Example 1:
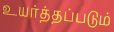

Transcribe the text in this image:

உயர்த்தப்படும்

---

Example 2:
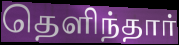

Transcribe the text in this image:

தெளிந்தார்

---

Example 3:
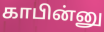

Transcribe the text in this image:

காபின்னு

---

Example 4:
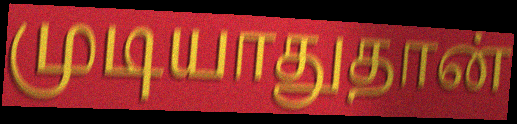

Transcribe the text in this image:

முடியாதுதான்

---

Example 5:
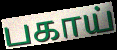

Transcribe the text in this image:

பகாய்